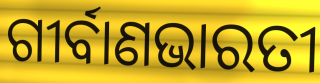
ଗୀର୍ବାଣଭାରତୀ